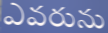
ఎవరును